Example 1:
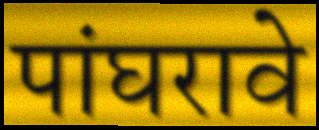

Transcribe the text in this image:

पांघरावे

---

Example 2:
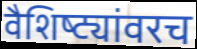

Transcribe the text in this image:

वैशिष्ट्यांवरच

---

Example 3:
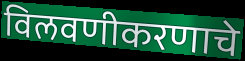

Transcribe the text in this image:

विलवणीकरणाचे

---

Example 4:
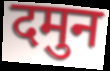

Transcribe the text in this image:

दमुन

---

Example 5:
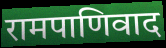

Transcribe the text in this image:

रामपाणिवाद